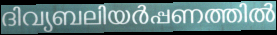
ദിവ്യബലിയർപ്പണത്തിൽ